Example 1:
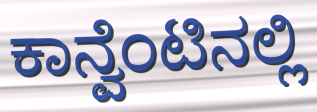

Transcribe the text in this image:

ಕಾನ್ವೆಂಟಿನಲ್ಲಿ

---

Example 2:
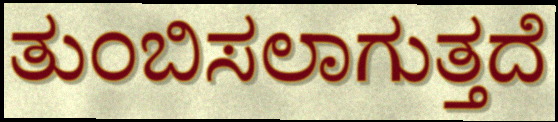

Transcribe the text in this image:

ತುಂಬಿಸಲಾಗುತ್ತದೆ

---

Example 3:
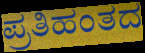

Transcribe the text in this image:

ಪ್ರತಿಹಂತದ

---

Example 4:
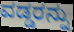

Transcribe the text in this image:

ವಡ್ಡರನ್ನು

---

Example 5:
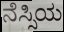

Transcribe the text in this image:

ನೆಸ್ಸಿಯ